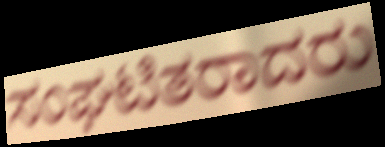
ಸಂಘಟಿತರಾದರು